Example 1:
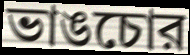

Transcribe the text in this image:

ভাঙচোর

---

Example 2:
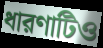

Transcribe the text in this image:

ধারণাটিও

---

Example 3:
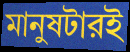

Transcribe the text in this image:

মানুষটারই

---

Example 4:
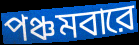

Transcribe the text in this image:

পঞ্চমবারে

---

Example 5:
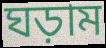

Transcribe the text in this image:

ঘড়াম